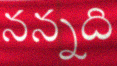
నన్నది